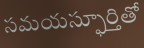
సమయస్ఫూర్తితో